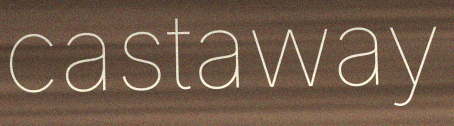
castaway